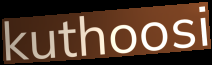
kuthoosi